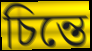
চিন্তে